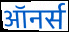
ऑनर्स